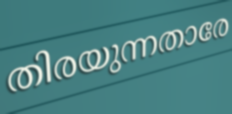
തിരയുന്നതാരേ